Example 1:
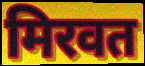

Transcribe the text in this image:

मिरवत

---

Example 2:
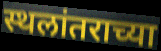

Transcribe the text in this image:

स्थलांतराच्या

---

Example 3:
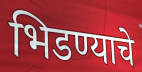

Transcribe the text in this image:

भिडण्याचे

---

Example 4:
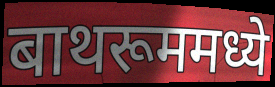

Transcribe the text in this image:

बाथरूममध्ये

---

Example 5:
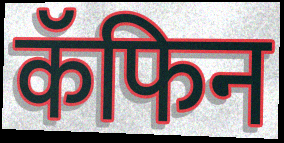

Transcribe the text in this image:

कॅफिन